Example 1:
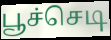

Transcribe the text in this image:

பூச்செடி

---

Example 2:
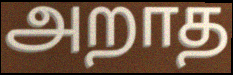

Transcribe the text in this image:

அறாத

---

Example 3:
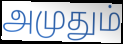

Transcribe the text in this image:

அமுதும்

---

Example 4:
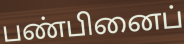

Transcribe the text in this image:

பண்பினைப்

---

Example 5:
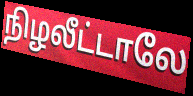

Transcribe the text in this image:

நிழலீட்டாலே